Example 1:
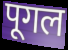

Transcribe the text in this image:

पूगल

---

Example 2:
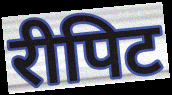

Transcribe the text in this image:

रीपिट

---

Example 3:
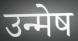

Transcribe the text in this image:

उन्मेष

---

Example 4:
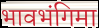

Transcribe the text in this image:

भावभंगिमा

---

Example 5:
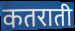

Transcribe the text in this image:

कतराती